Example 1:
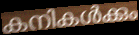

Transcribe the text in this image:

കനികൾക്കും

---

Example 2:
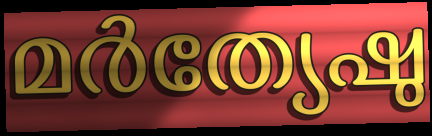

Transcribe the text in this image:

മർത്യേഷു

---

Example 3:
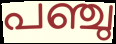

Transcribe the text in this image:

പഞ്ചു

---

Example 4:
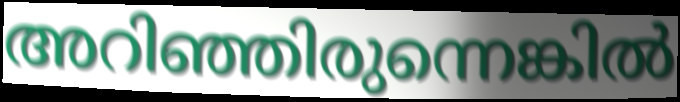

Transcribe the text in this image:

അറിഞ്ഞിരുന്നെങ്കിൽ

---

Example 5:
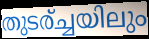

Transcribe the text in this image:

തുടര്ച്ചയിലും